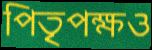
পিতৃপক্ষও